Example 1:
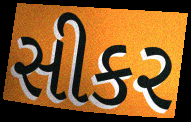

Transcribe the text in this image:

સીકર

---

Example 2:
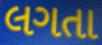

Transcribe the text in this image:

લગતા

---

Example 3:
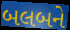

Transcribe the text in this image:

બલબને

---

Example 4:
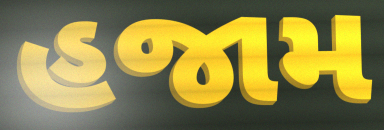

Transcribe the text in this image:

હજામ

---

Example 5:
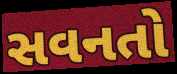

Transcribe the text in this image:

સવનતો